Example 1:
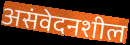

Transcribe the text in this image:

असंवेदनशील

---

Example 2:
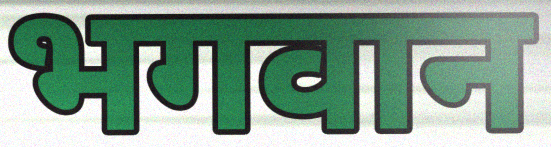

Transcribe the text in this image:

भगवान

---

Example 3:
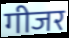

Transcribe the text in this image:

गीजर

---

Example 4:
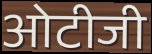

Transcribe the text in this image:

ओटीजी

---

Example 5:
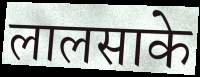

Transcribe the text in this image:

लालसाके